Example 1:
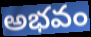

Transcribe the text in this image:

అభవం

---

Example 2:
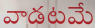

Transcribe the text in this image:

వాడటమే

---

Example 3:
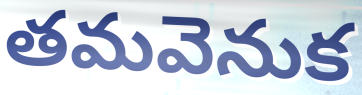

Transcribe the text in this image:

తమవెనుక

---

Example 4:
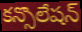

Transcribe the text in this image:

కన్సొలేషన్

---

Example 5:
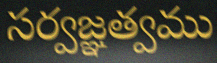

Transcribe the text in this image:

సర్వజ్ఞత్వము